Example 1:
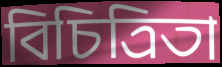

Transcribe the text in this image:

বিচিত্রিতা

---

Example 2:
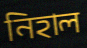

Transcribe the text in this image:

নিহাল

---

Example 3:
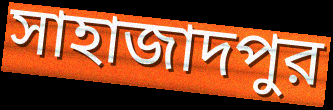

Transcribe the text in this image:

সাহাজাদপুর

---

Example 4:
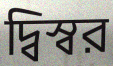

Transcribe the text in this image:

দ্বিস্বর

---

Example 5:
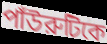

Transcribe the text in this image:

পাঁউরুটিকে